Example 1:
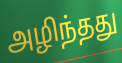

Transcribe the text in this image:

அழிந்தது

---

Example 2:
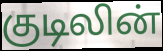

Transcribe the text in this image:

குடிலின்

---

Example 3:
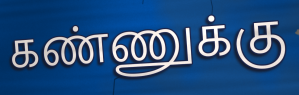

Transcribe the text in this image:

கண்ணுக்கு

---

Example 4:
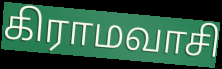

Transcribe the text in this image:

கிராமவாசி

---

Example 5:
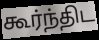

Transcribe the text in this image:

கூர்ந்திட